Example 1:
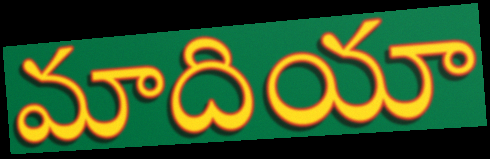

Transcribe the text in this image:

మాదియా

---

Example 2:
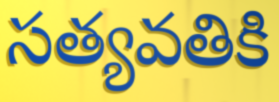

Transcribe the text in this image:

సత్యవతికి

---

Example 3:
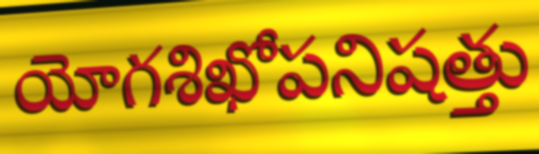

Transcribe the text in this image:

యోగశిఖోపనిషత్తు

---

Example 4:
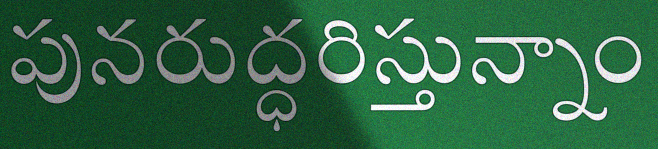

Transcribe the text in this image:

పునరుద్ధరిస్తున్నాం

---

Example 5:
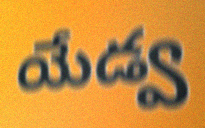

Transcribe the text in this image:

యేడ్వ